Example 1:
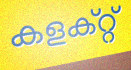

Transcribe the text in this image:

കളക്റ്റ്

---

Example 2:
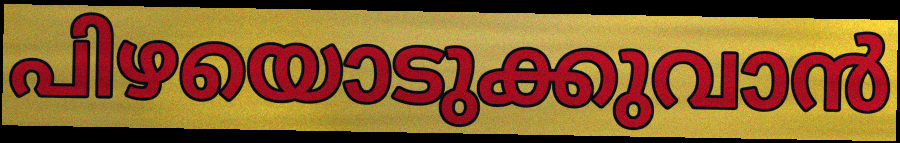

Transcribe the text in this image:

പിഴയൊടുക്കുവാൻ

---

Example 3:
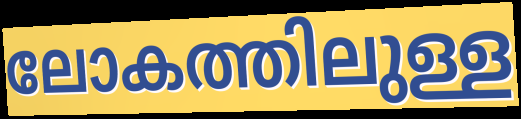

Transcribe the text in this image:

ലോകത്തിലുള്ള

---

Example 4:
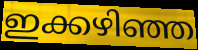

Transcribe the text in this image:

ഇക്കഴിഞ്ഞ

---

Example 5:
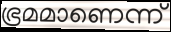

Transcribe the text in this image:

ഭ്രമമാണെന്ന്